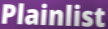
Plainlist